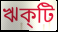
ঋক্‌টি